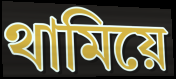
থামিয়ে